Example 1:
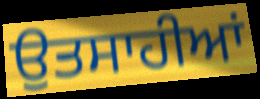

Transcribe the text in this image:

ਉਤਸਾਹੀਆਂ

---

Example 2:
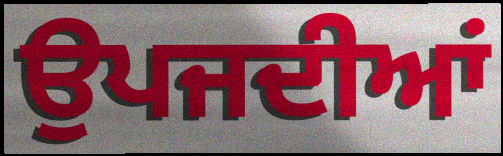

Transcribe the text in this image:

ਉਪਜਦੀਆਂ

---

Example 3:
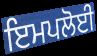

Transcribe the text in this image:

ਇਮਪਲੋਈ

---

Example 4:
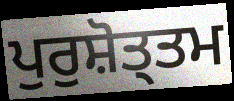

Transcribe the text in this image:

ਪੁਰੁਸ਼ੋਤ੍ਤਮ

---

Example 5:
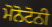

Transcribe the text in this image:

ਮੋਨੋਟੋਨੀ